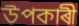
উপকাৰী